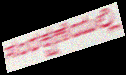
ಸಂರಕ್ಷಣೆಯಲ್ಲಿ